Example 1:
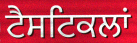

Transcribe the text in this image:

ਟੈਸਟਿਕਲਾਂ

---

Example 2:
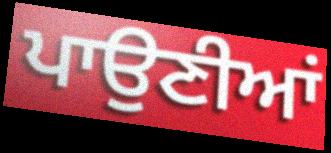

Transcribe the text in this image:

ਪਾਉਣੀਆਂ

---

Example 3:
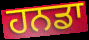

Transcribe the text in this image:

ਹਨਡਾ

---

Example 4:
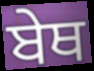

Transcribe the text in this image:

ਬੇਥ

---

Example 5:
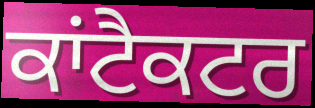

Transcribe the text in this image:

ਕਾਂਟੈਕਟਰ